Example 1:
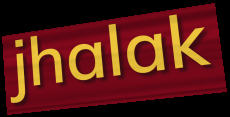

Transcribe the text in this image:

jhalak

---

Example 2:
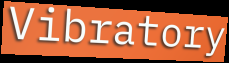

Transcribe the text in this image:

Vibratory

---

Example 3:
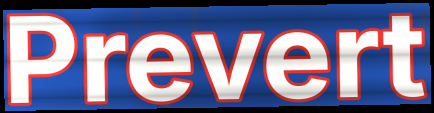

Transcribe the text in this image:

Prevert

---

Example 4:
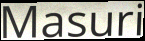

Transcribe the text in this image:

Masuri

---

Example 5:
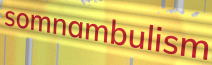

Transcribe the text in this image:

somnambulism